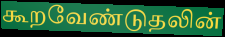
கூறவேண்டுதலின்